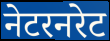
नेटरनरेट